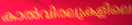
കാൽവിരലുകളിലെ